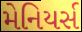
મેનિયર્સ